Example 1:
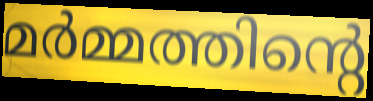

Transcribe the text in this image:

മർമ്മത്തിന്റെ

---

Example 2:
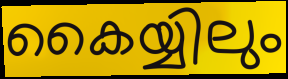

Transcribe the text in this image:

കൈയ്യിലും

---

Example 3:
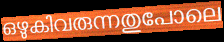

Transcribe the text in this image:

ഒഴുകിവരുന്നതുപോലെ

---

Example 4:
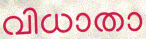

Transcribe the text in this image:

വിധാതാ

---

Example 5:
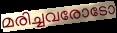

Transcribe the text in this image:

മരിച്ചവരോടോ